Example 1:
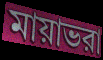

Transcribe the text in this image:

মায়াভরা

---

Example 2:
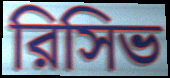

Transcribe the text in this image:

রিসিভ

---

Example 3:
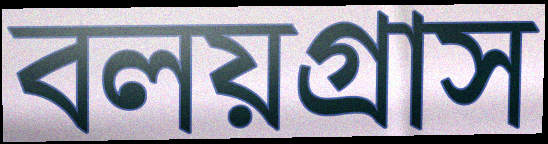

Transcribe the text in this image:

বলয়গ্রাস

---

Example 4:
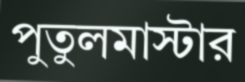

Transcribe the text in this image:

পুতুলমাস্টার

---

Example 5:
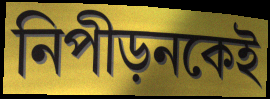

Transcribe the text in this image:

নিপীড়নকেই